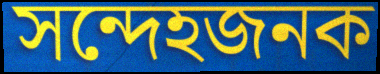
সন্দেহজনক